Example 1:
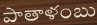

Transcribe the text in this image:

పాతాళంబు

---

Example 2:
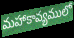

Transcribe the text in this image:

మహాకావ్యములో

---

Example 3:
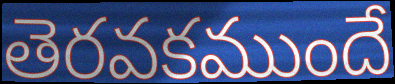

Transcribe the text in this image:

తెరవకముందే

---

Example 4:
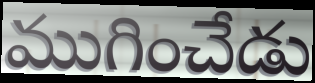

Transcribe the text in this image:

ముగించేడు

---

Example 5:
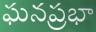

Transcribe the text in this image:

ఘనప్రభా